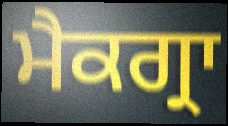
ਮੈਕਗ੍ਰਾ